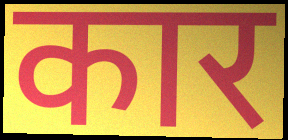
कार